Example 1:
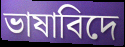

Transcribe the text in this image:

ভাষাবিদে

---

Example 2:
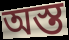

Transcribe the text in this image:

অস্ত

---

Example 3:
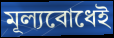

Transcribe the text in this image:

মূল্যবোধেই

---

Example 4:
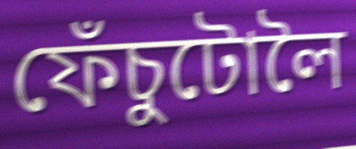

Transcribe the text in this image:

ফেঁচুটোলৈ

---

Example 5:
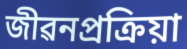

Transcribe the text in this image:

জীৱনপ্ৰক্ৰিয়া